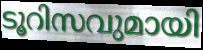
ടൂറിസവുമായി